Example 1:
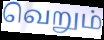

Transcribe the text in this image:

வெறும்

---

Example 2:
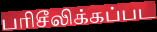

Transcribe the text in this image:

பரிசீலிக்கப்பட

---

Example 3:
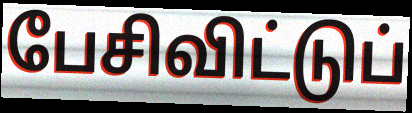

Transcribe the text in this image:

பேசிவிட்டுப்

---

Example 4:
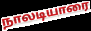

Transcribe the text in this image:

நாலடியாரை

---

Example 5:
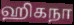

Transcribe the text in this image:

ஹிகநா